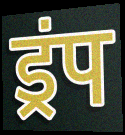
ड्रंप